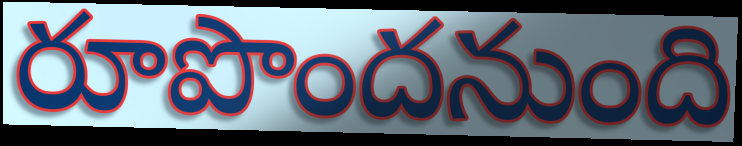
రూపొందనుంది